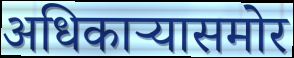
अधिकाऱ्यासमोर